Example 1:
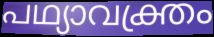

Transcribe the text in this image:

പഥ്യാവക്ത്രം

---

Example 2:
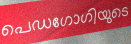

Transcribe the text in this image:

പെഡഗോഗിയുടെ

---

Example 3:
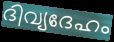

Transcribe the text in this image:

ദിവ്യദേഹം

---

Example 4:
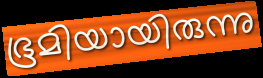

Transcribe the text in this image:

ഭൂമിയായിരുന്നു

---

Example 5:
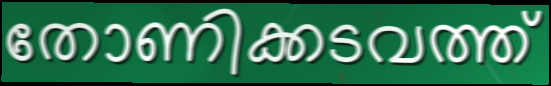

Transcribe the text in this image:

തോണിക്കടവത്ത്